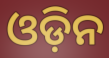
ଓଡ଼ିନ